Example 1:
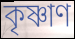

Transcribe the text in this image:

কৃষ্ণাণ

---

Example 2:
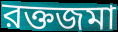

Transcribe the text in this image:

রক্তজমা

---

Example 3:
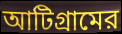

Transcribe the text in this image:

আটিগ্রামের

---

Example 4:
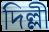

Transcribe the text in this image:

দিল্লী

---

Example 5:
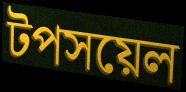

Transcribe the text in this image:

টপসয়েল